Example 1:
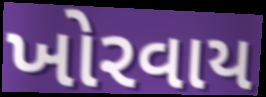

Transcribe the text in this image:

ખોરવાય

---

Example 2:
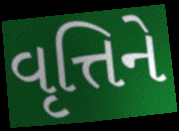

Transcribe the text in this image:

વૃત્તિને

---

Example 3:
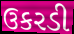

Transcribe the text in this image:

ઉકરડી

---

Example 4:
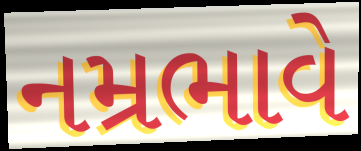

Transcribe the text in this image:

નમ્રભાવે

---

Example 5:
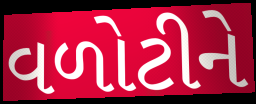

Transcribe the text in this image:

વળોટીને